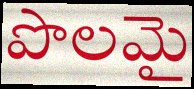
పొలమై